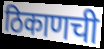
ठिकाणची